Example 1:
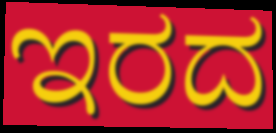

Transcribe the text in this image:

ಇರದ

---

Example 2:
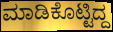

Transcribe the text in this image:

ಮಾಡಿಕೊಟ್ಟಿದ್ದ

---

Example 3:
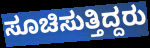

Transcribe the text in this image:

ಸೂಚಿಸುತ್ತಿದ್ದರು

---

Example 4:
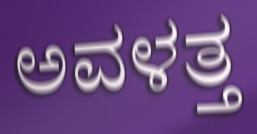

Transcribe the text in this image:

ಅವಳತ್ತ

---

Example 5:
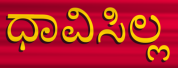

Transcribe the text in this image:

ಧಾವಿಸಿಲ್ಲ